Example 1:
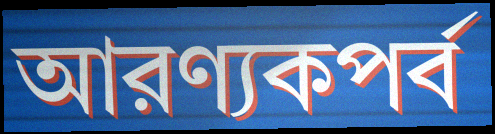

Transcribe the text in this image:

আরণ্যকপর্ব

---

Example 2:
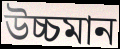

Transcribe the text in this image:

উচ্চমান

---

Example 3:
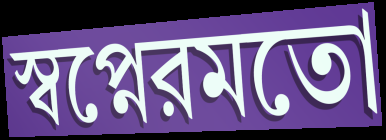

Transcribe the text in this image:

স্বপ্নেরমতো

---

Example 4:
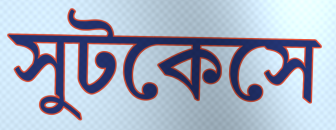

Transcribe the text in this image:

সুটকেসে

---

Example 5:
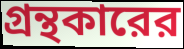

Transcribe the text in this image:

গ্রন্থকারের